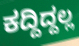
ಕದ್ದಿದ್ದಲ್ಲ